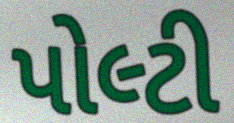
પોલ્ટી